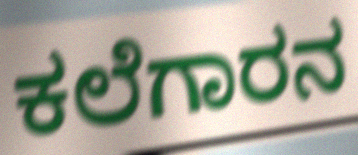
ಕಲೆಗಾರನ